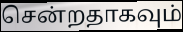
சென்றதாகவும்